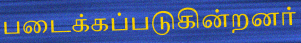
படைக்கப்படுகின்றனர்